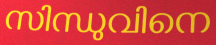
സിന്ധുവിനെ